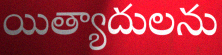
యిత్యాదులను